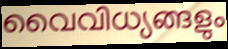
വൈവിധ്യങ്ങളും